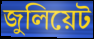
জুলিয়েট